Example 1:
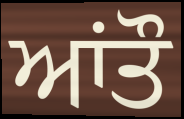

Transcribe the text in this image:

ਆਂਤੌ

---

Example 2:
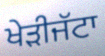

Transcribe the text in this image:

ਖੇੜੀਜੱਟਾ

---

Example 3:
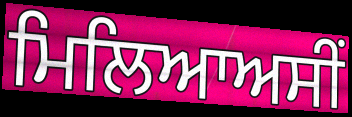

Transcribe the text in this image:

ਮਿਲਿਆਅਸੀਂ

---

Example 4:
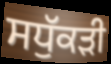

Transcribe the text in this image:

ਸਧੁੱਕੜੀ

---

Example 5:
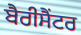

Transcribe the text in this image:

ਬੈਰੀਸੈਂਟਰ